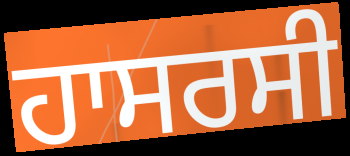
ਹਾਸਰਸੀ